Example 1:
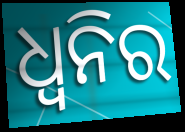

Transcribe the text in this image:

ଧ୍ୱନିର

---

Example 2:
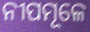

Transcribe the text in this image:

ନୀପମୂଳେ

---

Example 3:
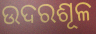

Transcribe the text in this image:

ଉଦରଶୂଳ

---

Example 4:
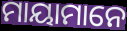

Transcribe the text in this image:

ମାୟାମାନେ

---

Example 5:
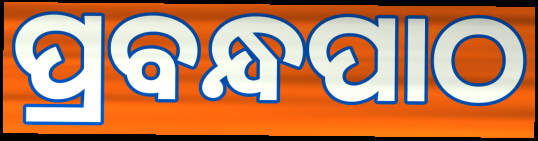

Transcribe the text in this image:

ପ୍ରବନ୍ଧପାଠ